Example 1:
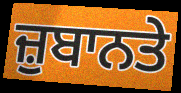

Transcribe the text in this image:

ਜ਼ੁਬਾਨਤੇ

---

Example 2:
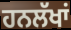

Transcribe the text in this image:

ਹਨਲੱਖਾਂ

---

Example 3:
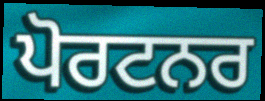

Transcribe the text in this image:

ਪੋਰਟਨਰ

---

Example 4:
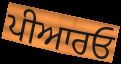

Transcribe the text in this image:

ਪੀਆਰਓ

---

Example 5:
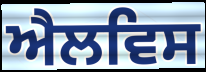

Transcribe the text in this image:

ਐਲਵਿਸ